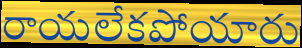
రాయలేకపోయారు